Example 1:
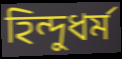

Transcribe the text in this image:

হিন্দুধর্ম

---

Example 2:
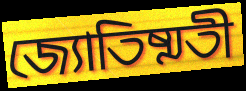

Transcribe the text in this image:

জ্যোতিষ্মতী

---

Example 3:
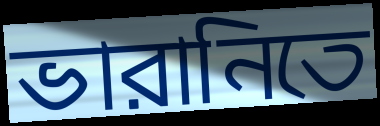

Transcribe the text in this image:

ভারানিতে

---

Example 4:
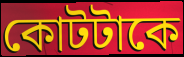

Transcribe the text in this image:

কোটটাকে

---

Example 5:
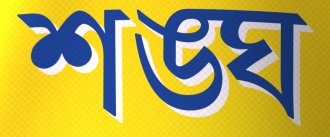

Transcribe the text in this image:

শঙ্ঘ